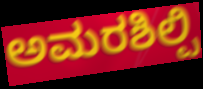
ಅಮರಶಿಲ್ಪಿ